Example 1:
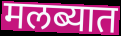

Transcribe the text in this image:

मलब्यात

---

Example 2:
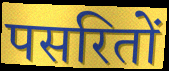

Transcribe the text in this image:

पसरितों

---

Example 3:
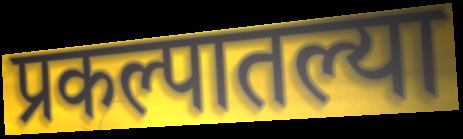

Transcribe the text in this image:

प्रकल्पातल्या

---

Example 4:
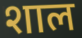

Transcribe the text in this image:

शाल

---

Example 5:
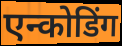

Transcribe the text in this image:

एन्कोडिंग